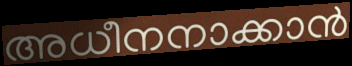
അധീനനാക്കാൻ